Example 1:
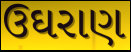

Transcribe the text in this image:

ઉઘરાણ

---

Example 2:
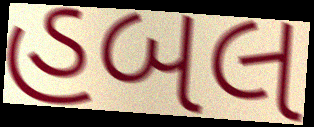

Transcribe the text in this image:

હબલ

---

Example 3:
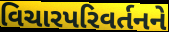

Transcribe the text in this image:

વિચારપરિવર્તનને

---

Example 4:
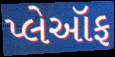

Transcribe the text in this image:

પ્લેઑફ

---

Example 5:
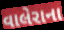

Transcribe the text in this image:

વાલેરાના